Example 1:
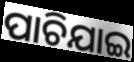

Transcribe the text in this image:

ପାଚିଯାଇ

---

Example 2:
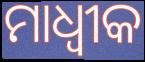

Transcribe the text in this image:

ମାଧ୍ୱୀକ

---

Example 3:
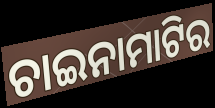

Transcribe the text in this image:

ଚାଇନାମାଟିର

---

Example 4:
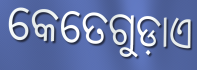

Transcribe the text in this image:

କେତେଗୁଡ଼ାଏ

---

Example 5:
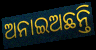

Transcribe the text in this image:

ଅନାଇଅଛନ୍ତି